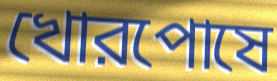
খোরপোষে